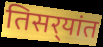
तिसर्‍यांत